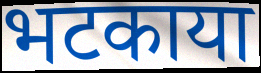
भटकाया